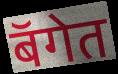
बॅगेत